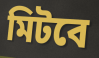
মিটবে